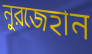
নুরজেহান